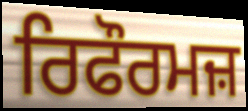
ਰਿਫੌਰਮਜ਼